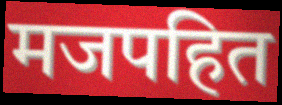
मजपहित